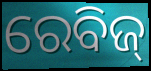
ରେବିଜ୍